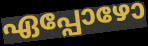
ഏപ്പോഴോ